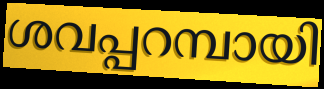
ശവപ്പറമ്പായി